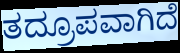
ತದ್ರೂಪವಾಗಿದೆ